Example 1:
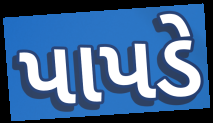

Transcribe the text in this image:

પાપડે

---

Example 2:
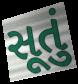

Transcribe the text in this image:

સૂતું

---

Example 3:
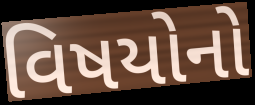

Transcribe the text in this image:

વિષયોનો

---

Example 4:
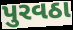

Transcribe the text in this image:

પુરવઠા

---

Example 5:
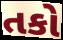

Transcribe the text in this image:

તકો